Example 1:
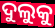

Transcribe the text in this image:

ଦୁଲୁକୁ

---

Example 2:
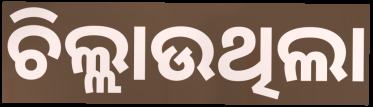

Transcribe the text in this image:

ଚିଲ୍ଲାଉଥିଲା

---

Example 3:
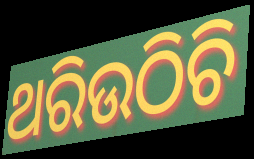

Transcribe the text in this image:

ଥରିଉଠିଚି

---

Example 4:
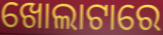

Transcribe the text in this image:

ଖୋଲାଟାରେ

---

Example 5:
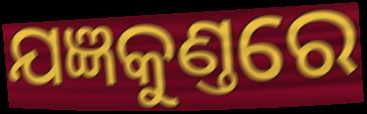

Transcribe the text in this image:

ଯଜ୍ଞକୁଣ୍ତରେ